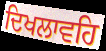
ਦਿਖਲਾਵਹਿ